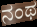
ನಂಥ